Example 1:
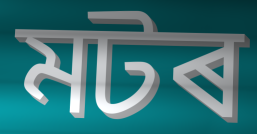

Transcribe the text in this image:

মটৰ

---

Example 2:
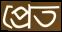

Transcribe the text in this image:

প্ৰেত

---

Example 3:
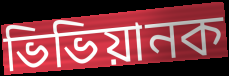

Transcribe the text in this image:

ভিভিয়ানক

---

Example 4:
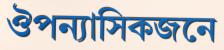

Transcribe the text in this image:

ঔপন্যাসিকজনে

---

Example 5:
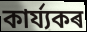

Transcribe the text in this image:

কাৰ্য্যকৰ